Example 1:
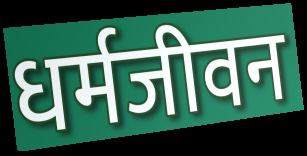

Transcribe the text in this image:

धर्मजीवन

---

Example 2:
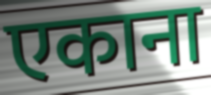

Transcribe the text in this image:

एकाना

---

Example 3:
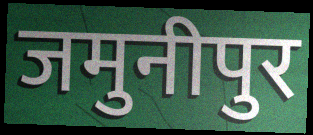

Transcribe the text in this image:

जमुनीपुर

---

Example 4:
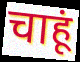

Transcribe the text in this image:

चाहूं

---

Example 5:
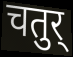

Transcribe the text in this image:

चतुर्